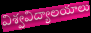
విశ్వవిద్యాలయాలు